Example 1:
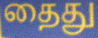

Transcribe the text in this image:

தைது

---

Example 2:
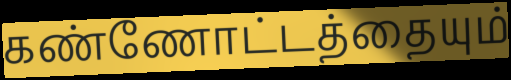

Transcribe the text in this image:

கண்ணோட்டத்தையும்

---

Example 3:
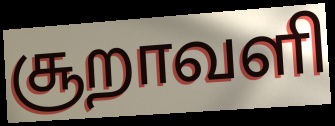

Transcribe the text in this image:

சூறாவளி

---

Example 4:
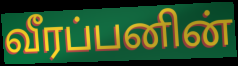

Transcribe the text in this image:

வீரப்பனின்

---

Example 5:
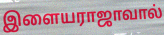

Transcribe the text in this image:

இளையராஜாவால்